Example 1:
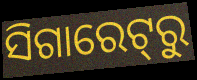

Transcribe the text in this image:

ସିଗାରେଟ୍‌ରୁ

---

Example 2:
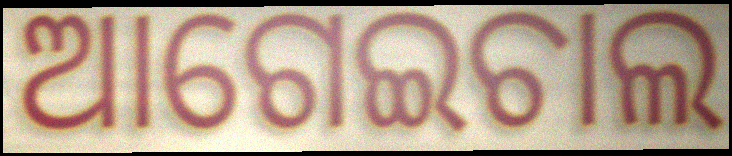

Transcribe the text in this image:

ଆଗେଇଚାଲ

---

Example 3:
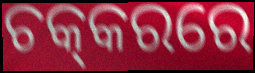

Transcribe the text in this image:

ଚକ୍‌କରରେ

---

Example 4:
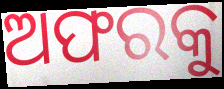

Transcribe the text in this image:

ଅଫରକୁ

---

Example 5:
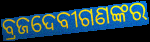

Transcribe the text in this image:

ବ୍ରଜଦେବୀଗଣଙ୍କର